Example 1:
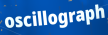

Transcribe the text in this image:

oscillograph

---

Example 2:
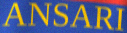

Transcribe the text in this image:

ANSARI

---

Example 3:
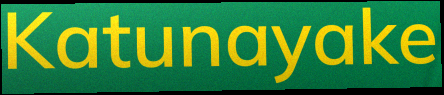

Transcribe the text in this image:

Katunayake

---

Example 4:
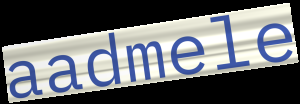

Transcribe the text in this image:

aadmele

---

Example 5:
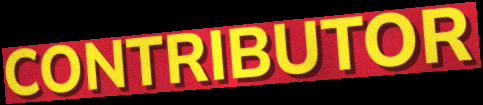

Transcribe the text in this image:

CONTRIBUTOR